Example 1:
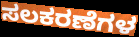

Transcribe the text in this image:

ಸಲಕರಣೆಗಳ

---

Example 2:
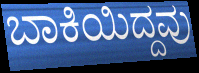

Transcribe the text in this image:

ಬಾಕಿಯಿದ್ದವು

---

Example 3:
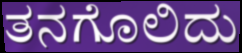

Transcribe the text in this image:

ತನಗೊಲಿದು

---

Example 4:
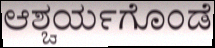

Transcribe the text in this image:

ಆಶ್ಚರ್ಯಗೊಂಡೆ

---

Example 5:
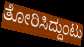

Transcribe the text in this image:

ತೋರಿಸಿದ್ದುಂಟು